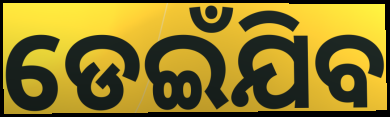
ଡେଇଁଯିବ